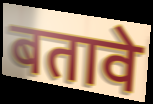
बतावे